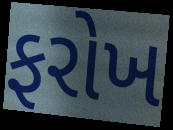
ફરોખ